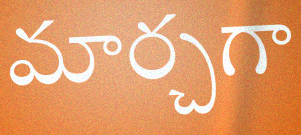
మార్చగా